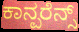
ಕಾನ್ಪರೆನ್ಸ್